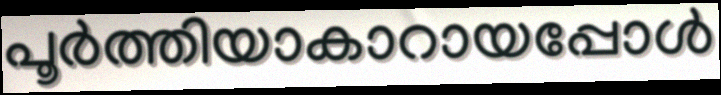
പൂർത്തിയാകാറായപ്പോൾ